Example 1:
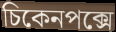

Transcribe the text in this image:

চিকেনপক্সে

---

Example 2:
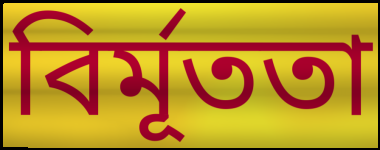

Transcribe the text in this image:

বির্মূততা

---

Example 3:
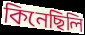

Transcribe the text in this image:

কিনেছিলি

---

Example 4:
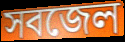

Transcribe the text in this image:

সবজেল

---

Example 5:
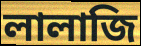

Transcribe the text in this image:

লালাজি